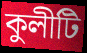
কুলীটি